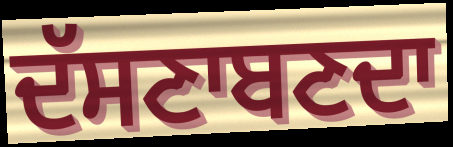
ਦੱਸਣਾਬਣਦਾ